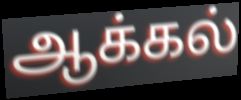
ஆக்கல்